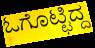
ಓಗೊಟ್ಟಿದ್ದ